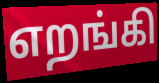
எறங்கி